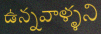
ఉన్నవాళ్ళని